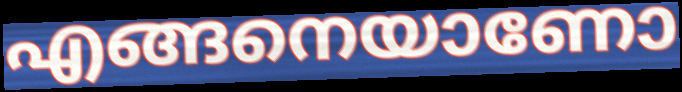
എങ്ങനെയാണോ